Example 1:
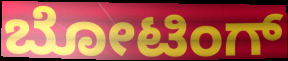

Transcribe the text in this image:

ಬೋಟಿಂಗ್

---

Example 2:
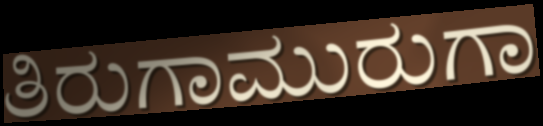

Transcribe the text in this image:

ತಿರುಗಾಮುರುಗಾ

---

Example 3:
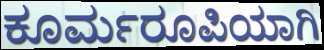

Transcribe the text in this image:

ಕೂರ್ಮರೂಪಿಯಾಗಿ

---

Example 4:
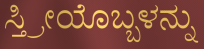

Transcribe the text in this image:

ಸ್ತ್ರೀಯೊಬ್ಬಳನ್ನು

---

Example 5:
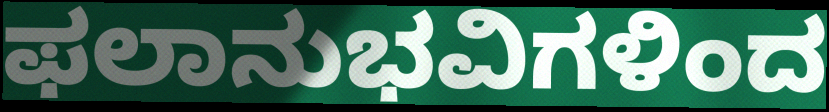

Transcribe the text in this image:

ಫಲಾನುಭವಿಗಳಿಂದ